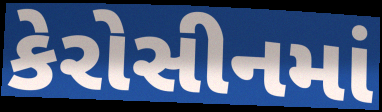
કેરોસીનમાં